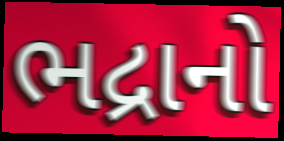
ભદ્રાનો